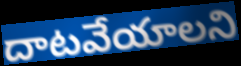
దాటవేయాలని